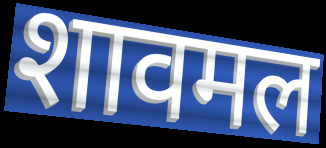
शावमल